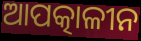
ଆପତ୍କାଳୀନ